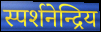
स्पर्शनेन्द्रिय